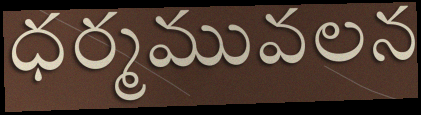
ధర్మమువలన